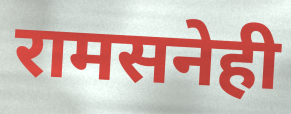
रामसनेही